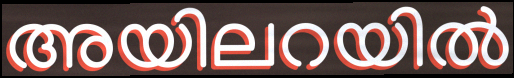
അയിലറയിൽ